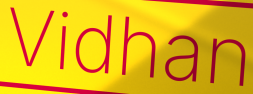
Vidhan